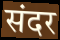
संदर